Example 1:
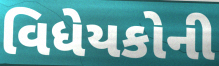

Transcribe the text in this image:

વિધેયકોની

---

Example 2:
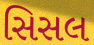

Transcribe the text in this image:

સિસલ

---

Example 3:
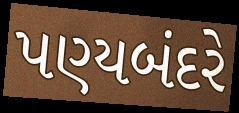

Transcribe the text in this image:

પણ્યબંદરે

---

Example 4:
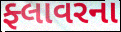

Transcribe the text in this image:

ફ્લાવરના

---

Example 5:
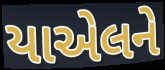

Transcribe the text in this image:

યાએલને